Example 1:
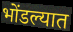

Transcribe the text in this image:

भोंडल्यात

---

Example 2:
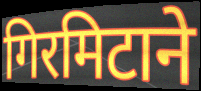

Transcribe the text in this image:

गिरमिटाने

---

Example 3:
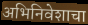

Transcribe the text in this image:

अभिनिवेशाचा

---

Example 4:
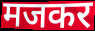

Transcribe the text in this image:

मजकर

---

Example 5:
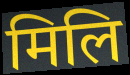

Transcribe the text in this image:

मिलि